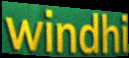
windhi